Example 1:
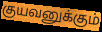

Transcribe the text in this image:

குயவனுக்கும்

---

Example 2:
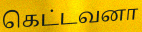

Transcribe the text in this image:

கெட்டவனா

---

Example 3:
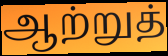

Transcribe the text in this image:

ஆற்றுத்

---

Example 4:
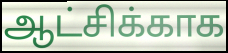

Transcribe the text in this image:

ஆட்சிக்காக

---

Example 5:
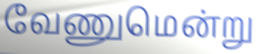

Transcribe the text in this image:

வேணுமென்று